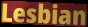
Lesbian